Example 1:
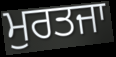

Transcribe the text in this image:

ਮੁਰਤਜਾ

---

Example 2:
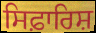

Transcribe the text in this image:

ਸਿਫ਼ਾਰਿਸ਼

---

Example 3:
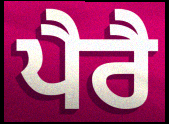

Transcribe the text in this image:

ਪੈਰੈ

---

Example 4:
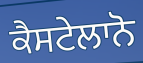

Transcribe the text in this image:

ਕੈਸਟੇਲਾਨੋ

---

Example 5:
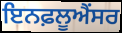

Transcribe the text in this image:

ਇਨਫ਼ਲੂਐਂਸਰ